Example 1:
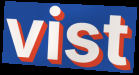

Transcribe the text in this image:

vist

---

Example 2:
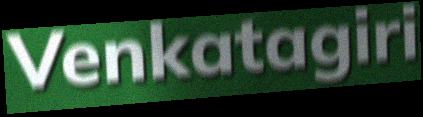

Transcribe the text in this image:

Venkatagiri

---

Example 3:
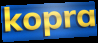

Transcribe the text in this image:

kopra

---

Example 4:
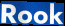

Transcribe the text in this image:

Rook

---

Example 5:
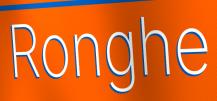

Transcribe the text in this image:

Ronghe